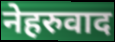
नेहरुवाद